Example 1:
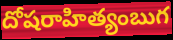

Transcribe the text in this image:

దోషరాహిత్యంబుగ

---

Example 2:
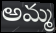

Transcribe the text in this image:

అమ్మ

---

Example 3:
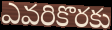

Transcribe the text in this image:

ఎవరికొరకు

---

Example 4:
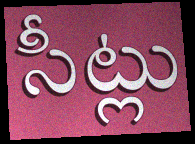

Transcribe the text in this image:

సీట్లు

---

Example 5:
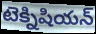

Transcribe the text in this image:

టెక్నిషియన్